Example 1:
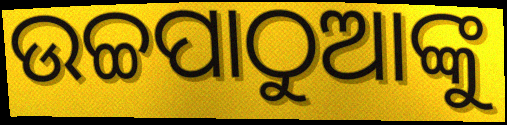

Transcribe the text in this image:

ଉଚ୍ଚପାଠୁଆଙ୍କୁ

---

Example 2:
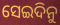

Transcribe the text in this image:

ସେଇଦିନୁ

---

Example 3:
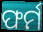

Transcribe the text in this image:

ଫର୍ମ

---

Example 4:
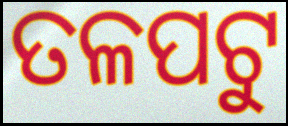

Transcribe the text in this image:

ତଳପଟୁ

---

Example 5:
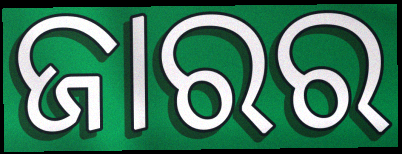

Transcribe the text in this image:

ଜାରର